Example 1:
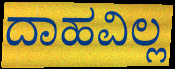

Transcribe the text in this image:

ದಾಹವಿಲ್ಲ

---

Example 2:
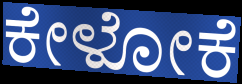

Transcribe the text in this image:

ಕೇಳೋಕೆ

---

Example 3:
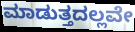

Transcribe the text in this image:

ಮಾಡುತ್ತದಲ್ಲವೇ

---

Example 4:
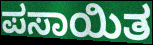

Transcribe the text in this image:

ಪಸಾಯಿತ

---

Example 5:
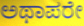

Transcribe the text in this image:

ಅಥಾಪರೇ